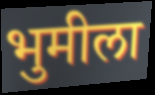
भुमीला